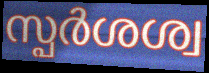
സ്പർശശ്വ